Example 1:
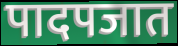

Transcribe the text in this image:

पादपजात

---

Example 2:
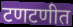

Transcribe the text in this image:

टणटणीत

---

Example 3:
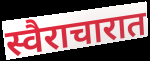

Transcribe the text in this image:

स्वैराचारात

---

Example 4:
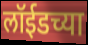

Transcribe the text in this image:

लॉईडच्या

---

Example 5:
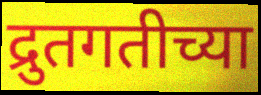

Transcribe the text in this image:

द्रुतगतीच्या